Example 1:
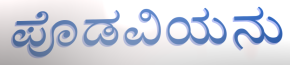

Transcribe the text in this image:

ಪೊಡವಿಯನು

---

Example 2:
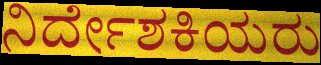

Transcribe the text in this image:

ನಿರ್ದೇಶಕಿಯರು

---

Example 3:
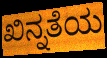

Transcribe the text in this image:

ಖಿನ್ನತೆಯ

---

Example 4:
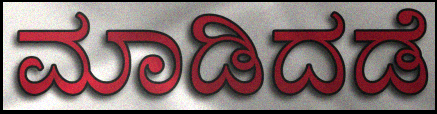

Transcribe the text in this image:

ಮಾಡಿದಡೆ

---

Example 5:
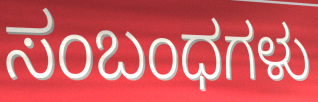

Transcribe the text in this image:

ಸಂಬಂಧಗಳು